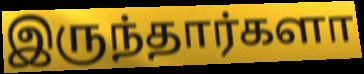
இருந்தார்களா